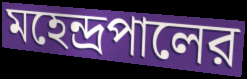
মহেন্দ্রপালের